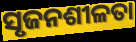
ସୃଜନଶୀଳତା